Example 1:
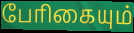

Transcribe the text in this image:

பேரிகையும்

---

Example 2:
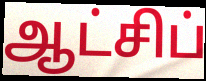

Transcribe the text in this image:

ஆட்சிப்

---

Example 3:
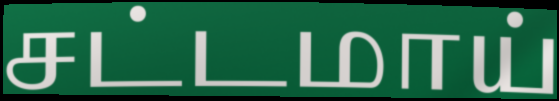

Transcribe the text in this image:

சட்டமாய்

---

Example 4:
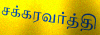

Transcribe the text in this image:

சக்கரவர்த்தி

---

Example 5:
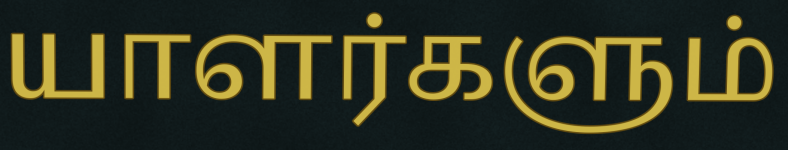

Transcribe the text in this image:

யாளர்களும்